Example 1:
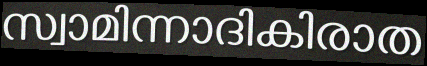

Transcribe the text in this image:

സ്വാമിന്നാദികിരാത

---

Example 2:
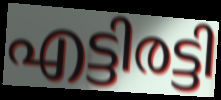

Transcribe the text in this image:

എട്ടിരട്ടി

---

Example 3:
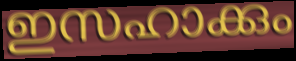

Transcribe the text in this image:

ഇസഹാക്കും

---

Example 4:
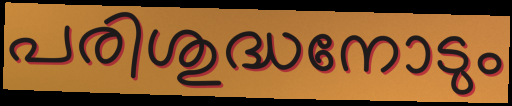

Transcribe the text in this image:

പരിശുദ്ധനോടും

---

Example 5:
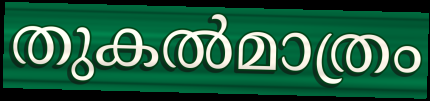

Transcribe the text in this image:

തുകൽമാത്രം